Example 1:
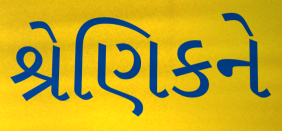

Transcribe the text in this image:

શ્રેણિકને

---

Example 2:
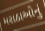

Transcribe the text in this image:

મરાઠાઓનું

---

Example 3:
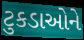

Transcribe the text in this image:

ટુકડાઓને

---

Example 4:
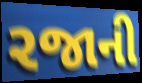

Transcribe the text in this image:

રજાની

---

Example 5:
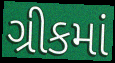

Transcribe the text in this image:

ગ્રીકમાં